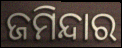
ଜମିନ୍ଦାର